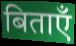
बिताएँ